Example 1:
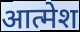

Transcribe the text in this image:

आत्मेश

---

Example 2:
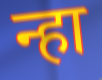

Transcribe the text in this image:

न्हा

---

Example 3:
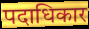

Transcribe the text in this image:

पदाधिकार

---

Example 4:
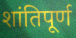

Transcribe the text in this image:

शांतिपूर्ण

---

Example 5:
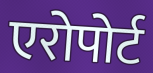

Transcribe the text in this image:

एरोपोर्ट